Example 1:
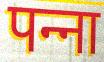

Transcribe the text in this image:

पन्‍ना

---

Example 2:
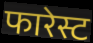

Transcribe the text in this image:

फारेस्‍ट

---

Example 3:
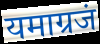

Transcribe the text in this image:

यमाग्रजं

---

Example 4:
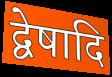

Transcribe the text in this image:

द्वेषादि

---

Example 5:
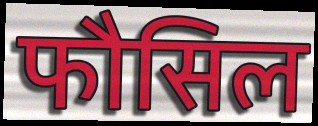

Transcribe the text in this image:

फौसिल